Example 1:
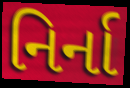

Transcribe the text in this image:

નિર્ના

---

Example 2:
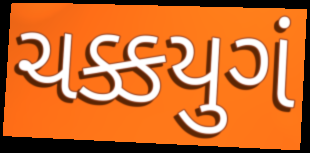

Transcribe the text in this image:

ચક્કયુગં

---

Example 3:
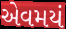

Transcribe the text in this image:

એવમયં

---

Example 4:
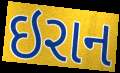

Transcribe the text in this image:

ઇરાન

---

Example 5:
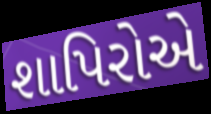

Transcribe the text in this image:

શાપિરોએ